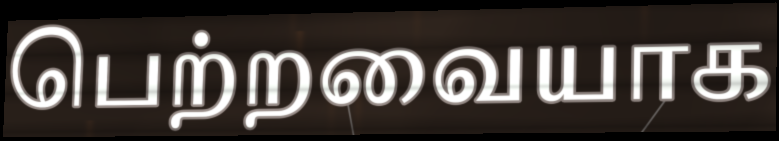
பெற்றவையாக